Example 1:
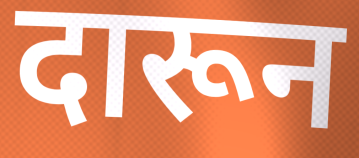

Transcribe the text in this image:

दारून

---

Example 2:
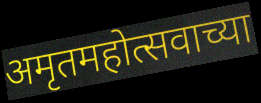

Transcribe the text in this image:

अमृतमहोत्सवाच्या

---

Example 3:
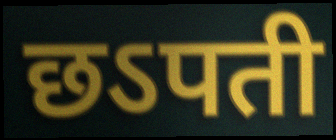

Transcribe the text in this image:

छऽपती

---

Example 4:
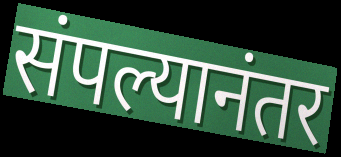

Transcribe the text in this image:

संपल्यानंतर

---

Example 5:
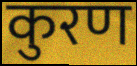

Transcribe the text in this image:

कुरण